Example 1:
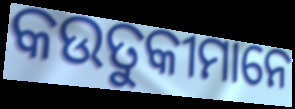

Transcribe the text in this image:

କଉତୁକୀମାନେ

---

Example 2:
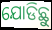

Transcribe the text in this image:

ଯୋଡିଛୁ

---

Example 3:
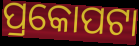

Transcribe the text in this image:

ପ୍ରକୋପଟା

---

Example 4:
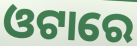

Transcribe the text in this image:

ଓଟାରେ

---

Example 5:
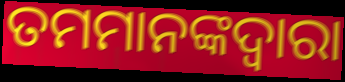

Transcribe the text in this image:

ତମମାନଙ୍କଦ୍ଵାରା